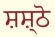
ਸ਼ਸ਼੍ਠੋ